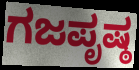
ಗಜಪೃಷ್ಠ